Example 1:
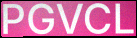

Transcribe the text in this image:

PGVCL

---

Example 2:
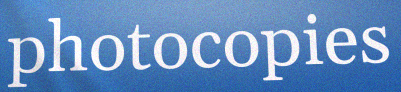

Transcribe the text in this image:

photocopies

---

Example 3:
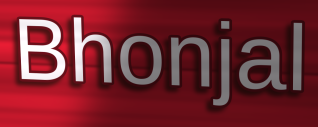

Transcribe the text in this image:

Bhonjal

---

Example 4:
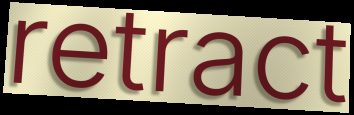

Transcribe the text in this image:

retract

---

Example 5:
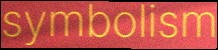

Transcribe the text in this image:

symbolism